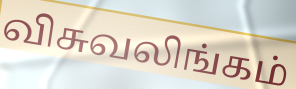
விசுவலிங்கம்